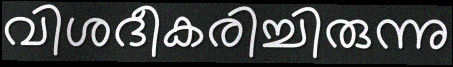
വിശദീകരിച്ചിരുന്നു